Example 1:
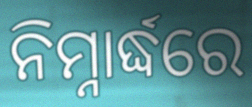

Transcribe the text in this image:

ନିମ୍ନାର୍ଦ୍ଧରେ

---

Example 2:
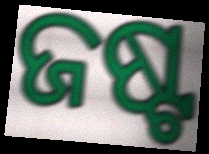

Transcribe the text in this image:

ଜଷ୍ଟ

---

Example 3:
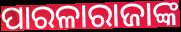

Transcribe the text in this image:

ପାରଳାରାଜାଙ୍କ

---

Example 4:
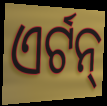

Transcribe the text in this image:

ଏର୍ଟନ୍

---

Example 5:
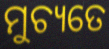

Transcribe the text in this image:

ମୁଚ୍ୟତେ